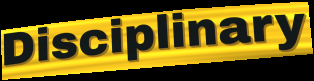
Disciplinary